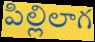
పిల్లిలాగ